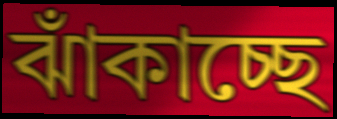
ঝাঁকাচ্ছে